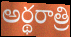
అర్థరాత్రి